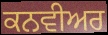
ਕਨਵੀਅਰ